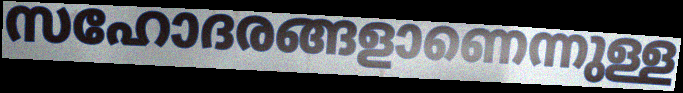
സഹോദരങ്ങളാണെന്നുള്ള